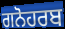
ਗਨੋਹਰਬ